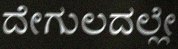
ದೇಗುಲದಲ್ಲೇ